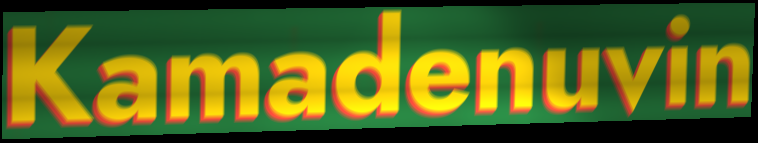
Kamadenuvin